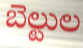
బెల్టుల